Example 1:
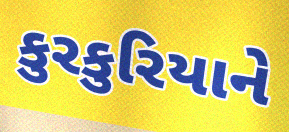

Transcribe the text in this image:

કુરકુરિયાને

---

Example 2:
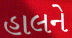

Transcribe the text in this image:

હાલને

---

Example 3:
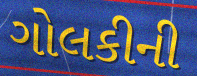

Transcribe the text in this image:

ગોલકીની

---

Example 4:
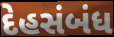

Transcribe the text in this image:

દેહસંબંધ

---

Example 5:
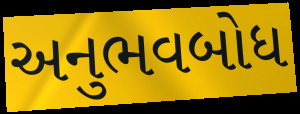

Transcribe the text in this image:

અનુભવબોધ